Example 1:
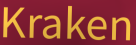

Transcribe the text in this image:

Kraken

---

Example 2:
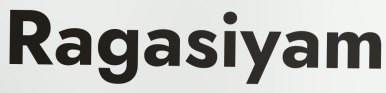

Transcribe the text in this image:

Ragasiyam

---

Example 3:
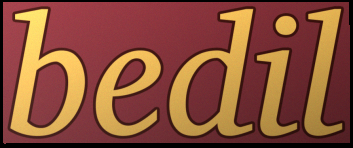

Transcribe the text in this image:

bedil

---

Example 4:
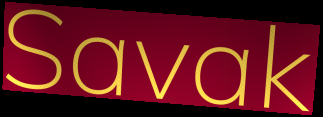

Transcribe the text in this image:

Savak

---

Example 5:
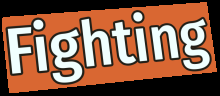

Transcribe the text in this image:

Fighting